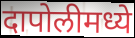
दापोलीमध्ये